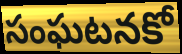
సంఘటనకో